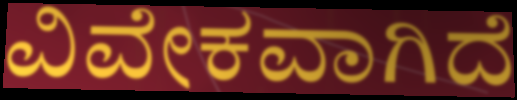
ವಿವೇಕವಾಗಿದೆ